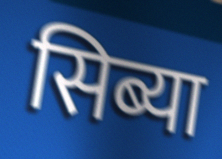
सिब्या